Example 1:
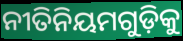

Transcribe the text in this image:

ନୀତିନିୟମଗୁଡ଼ିକୁ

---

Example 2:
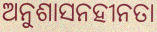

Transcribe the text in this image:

ଅନୁଶାସନହୀନତା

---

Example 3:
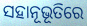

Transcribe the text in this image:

ସହାନୂଭୂତିରେ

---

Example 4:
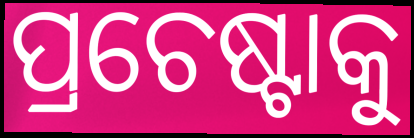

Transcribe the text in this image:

ପ୍ରଚେଷ୍ଟାକୁ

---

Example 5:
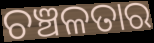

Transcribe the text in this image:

ଚଞ୍ଚଳତାର